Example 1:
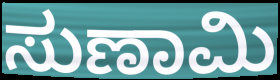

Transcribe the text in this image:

ಸುಣಾಮಿ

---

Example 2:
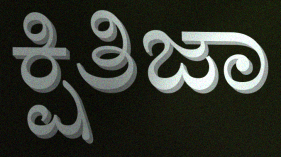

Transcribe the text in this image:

ಕ್ಷಿತಿಜಾ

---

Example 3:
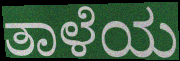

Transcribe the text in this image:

ತಾಳೆಯ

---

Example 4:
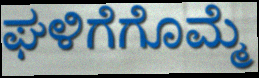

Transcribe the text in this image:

ಘಳಿಗೆಗೊಮ್ಮೆ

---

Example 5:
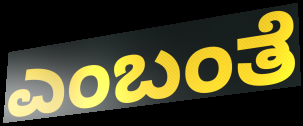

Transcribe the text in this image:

ಎಂಬಂತೆ